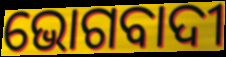
ଭୋଗବାଦୀ